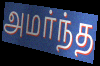
அமர்ந்த